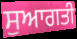
ਸੁਆਗਤੀ